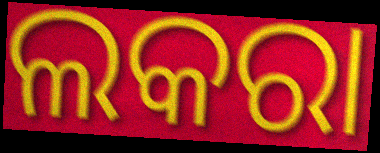
ଲକରା